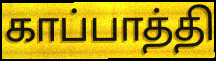
காப்பாத்தி